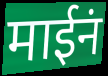
माईनं